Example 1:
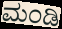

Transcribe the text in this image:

ಮಂಡಿ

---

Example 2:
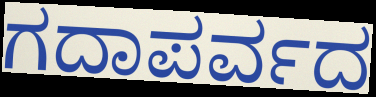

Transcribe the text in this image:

ಗದಾಪರ್ವದ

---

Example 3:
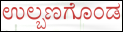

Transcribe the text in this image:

ಉಲ್ಬಣಗೊಂಡ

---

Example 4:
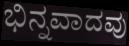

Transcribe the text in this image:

ಭಿನ್ನವಾದವು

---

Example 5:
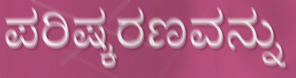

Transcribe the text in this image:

ಪರಿಷ್ಕರಣವನ್ನು